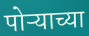
पोऱ्याच्या